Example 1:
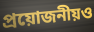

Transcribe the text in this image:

প্রয়োজনীয়ও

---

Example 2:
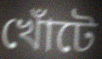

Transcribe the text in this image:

খোঁটে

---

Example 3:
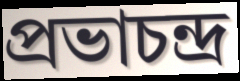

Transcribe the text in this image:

প্রভাচন্দ্র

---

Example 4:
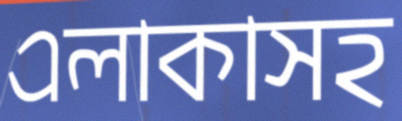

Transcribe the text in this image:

এলাকাসহ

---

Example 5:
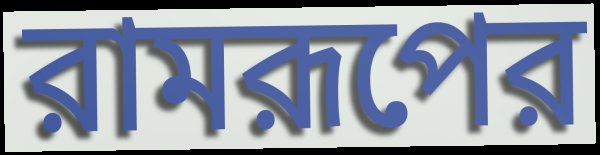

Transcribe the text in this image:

রামরূপের